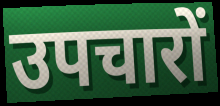
उपचारों